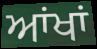
ਆਂਖਾਂ